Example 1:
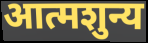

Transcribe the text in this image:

आत्मशुन्य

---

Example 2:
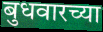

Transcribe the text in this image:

बुधवारच्या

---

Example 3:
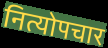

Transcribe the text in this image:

नित्योपचार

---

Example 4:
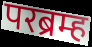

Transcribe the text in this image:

परब्रम्ह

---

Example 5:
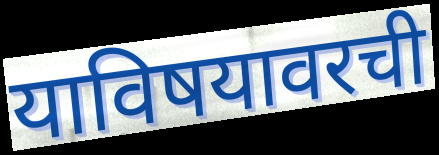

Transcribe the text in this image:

याविषयावरची